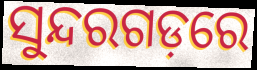
ସୁନ୍ଦରଗଡ଼ରେ